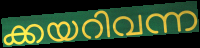
ക്കയറിവന്ന